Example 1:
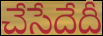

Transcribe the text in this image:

చేసేదేదీ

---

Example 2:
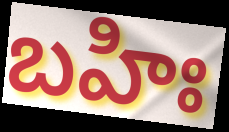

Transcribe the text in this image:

బహిః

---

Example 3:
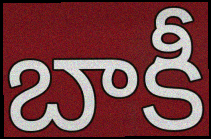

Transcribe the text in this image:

బాకీ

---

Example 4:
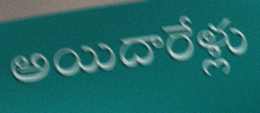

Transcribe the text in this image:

అయిదారేళ్లు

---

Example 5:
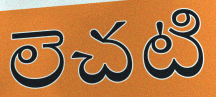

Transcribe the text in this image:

లెచటి